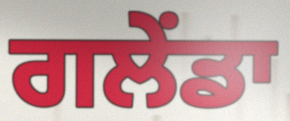
ਗਲੇਂਡਾ